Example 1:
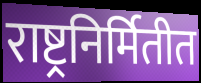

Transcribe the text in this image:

राष्ट्रनिर्मितीत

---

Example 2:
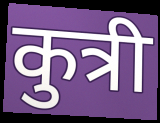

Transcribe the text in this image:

कुत्री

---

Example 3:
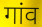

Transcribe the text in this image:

गांव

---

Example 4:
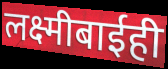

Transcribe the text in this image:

लक्ष्मीबाईही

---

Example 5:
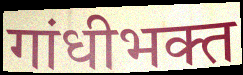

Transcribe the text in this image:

गांधीभक्त